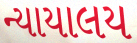
ન્યાયાલય